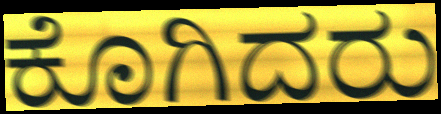
ಕೊಗಿದರು